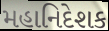
મહાનિદેશક